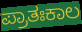
ಪ್ರಾತಃಕಾಲ